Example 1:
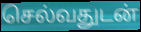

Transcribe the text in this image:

செல்வதுடன்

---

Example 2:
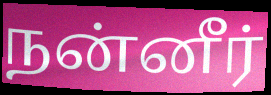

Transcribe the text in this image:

நன்னீர்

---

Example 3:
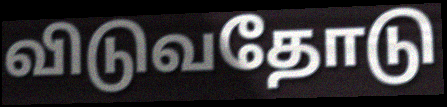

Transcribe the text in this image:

விடுவதோடு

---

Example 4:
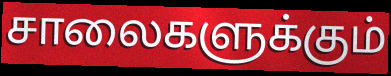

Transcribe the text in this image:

சாலைகளுக்கும்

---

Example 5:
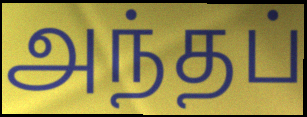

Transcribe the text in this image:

அந்தப்